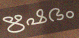
ഋഷഭം